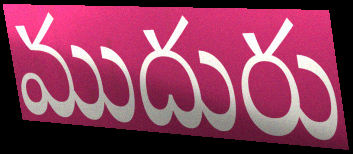
ముదురు